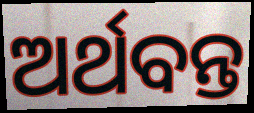
ଅର୍ଥବନ୍ତ